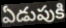
ఏడుపుకి